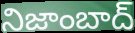
నిజాంబాద్